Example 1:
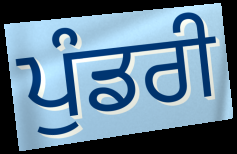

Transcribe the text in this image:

ਪੁੰਡਰੀ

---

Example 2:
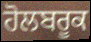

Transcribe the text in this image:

ਹੋਲਬਰੂਕ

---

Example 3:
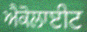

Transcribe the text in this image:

ਐਕੋਲਾਈਟ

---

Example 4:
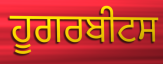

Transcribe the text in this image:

ਹੂਗਰਬੀਟਸ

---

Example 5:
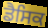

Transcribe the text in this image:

ਡੈਸਿਕ